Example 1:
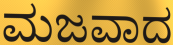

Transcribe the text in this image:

ಮಜವಾದ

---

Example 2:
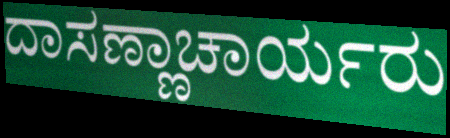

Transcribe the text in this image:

ದಾಸಣ್ಣಾಚಾರ್ಯರು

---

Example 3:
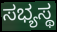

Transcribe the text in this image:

ಸಭ್ಯಸ್ಥ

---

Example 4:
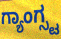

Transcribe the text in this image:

ಗ್ಯಾಂಗ್ಸ್ಟ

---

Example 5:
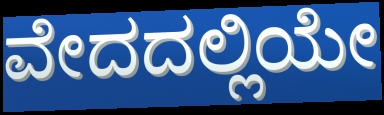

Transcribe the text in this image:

ವೇದದಲ್ಲಿಯೇ